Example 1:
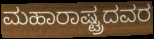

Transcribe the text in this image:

ಮಹಾರಾಷ್ಟ್ರದವರ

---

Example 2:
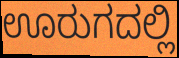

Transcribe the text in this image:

ಊರುಗದಲ್ಲಿ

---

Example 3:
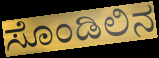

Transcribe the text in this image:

ಸೊಂಡಿಲಿನ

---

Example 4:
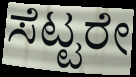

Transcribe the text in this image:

ಸೆಟ್ಟರೇ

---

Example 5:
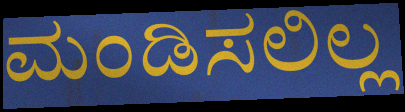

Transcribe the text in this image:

ಮಂಡಿಸಲಿಲ್ಲ